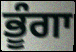
ਭੂੰਗਾ